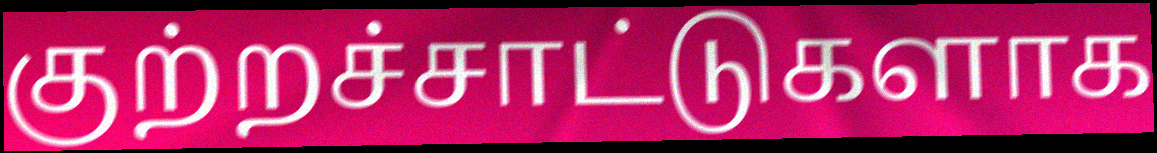
குற்றச்சாட்டுகளாக